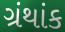
ગ્રંથાંક